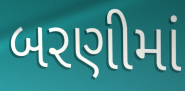
બરણીમાં